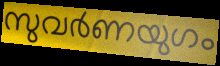
സുവർണയുഗം